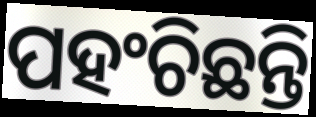
ପହଂଚିଛନ୍ତି